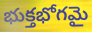
భుక్తభోగమై